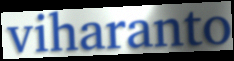
viharanto